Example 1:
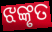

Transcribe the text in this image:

ଝଙ୍କୃତ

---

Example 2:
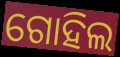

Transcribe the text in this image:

ଗୋହିଲ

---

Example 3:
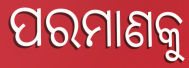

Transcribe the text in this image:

ପରମାଣକୁ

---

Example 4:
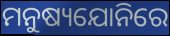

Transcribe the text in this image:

ମନୁଷ୍ୟଯୋନିରେ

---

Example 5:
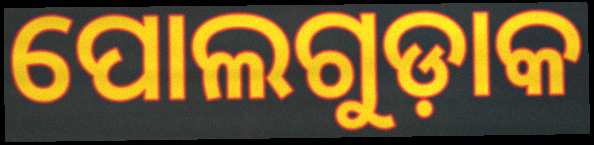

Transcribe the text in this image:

ପୋଲଗୁଡ଼ାକ